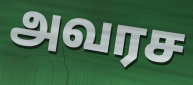
அவரச